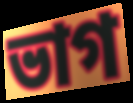
ভাগ